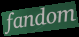
fandom